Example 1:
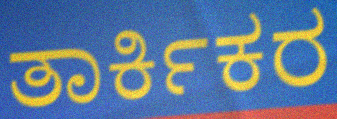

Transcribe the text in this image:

ತಾರ್ಕಿಕರ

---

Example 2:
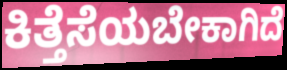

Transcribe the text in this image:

ಕಿತ್ತೆಸೆಯಬೇಕಾಗಿದೆ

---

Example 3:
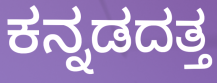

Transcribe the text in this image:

ಕನ್ನಡದತ್ತ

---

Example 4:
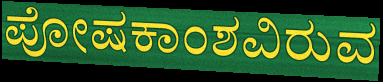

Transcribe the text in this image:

ಪೋಷಕಾಂಶವಿರುವ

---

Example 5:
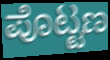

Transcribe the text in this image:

ಪೊಟ್ಟಣ